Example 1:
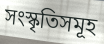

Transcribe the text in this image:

সংস্কৃতিসমূহ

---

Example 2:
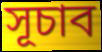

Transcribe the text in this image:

সূচাব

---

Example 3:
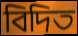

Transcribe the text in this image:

বিদিত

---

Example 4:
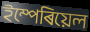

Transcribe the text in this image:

ইম্পেৰিয়েল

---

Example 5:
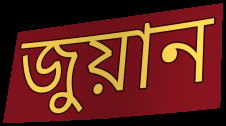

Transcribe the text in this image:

জুয়ান